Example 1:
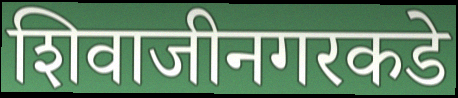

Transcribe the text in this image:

शिवाजीनगरकडे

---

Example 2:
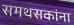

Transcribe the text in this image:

समथसकांना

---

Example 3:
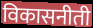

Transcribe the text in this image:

विकासनीती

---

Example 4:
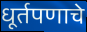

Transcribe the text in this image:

धूर्तपणाचे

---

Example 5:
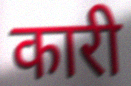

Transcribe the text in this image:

कारी